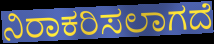
ನಿರಾಕರಿಸಲಾಗದೆ